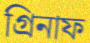
গ্রিনাফ